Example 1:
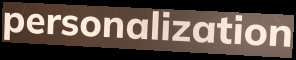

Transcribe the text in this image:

personalization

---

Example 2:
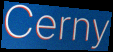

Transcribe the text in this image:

Cerny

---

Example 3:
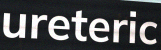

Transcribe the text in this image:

ureteric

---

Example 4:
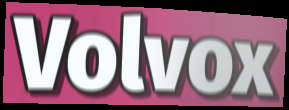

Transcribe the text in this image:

Volvox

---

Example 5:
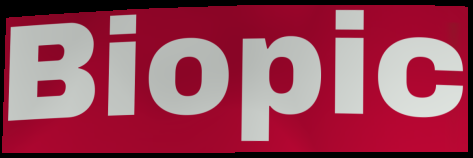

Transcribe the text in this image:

Biopic